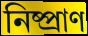
নিষ্প্রাণ